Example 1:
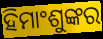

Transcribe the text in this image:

ହିମାଂଶୁଙ୍କର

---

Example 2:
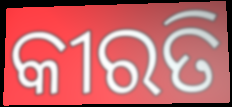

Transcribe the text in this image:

କୀରତି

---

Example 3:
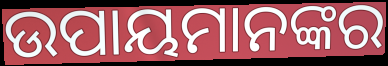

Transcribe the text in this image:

ଉପାୟମାନଙ୍କର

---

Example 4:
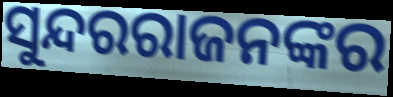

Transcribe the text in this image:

ସୁନ୍ଦରରାଜନଙ୍କର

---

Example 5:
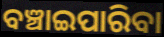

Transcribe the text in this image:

ବଞ୍ଚାଇପାରିବା